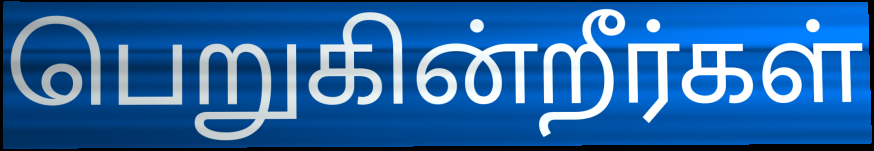
பெறுகின்றீர்கள்